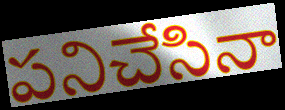
పనిచేసినా